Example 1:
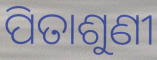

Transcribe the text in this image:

ପିତାଶୁଣୀ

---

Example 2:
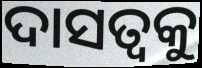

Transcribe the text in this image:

ଦାସତ୍ୱକୁ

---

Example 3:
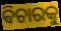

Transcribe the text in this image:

ଵିଚାରକୁ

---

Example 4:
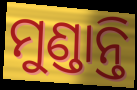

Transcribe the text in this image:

ମୁଣ୍ଡାନ୍ତି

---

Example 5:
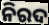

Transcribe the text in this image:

ନିରଦ